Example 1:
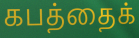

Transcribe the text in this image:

கபத்தைக்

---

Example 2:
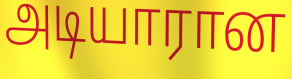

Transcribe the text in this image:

அடியாரான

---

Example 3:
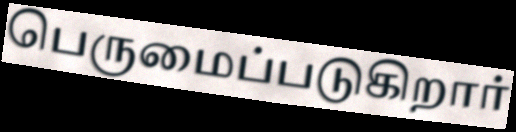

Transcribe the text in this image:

பெருமைப்படுகிறார்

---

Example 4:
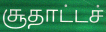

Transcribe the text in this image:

சூதாட்டச்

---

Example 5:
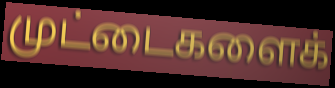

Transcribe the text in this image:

முட்டைகளைக்